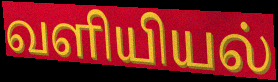
வளியியல்